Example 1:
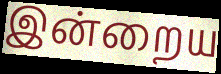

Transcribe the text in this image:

இன்றைய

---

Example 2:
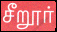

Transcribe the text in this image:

சீறூர்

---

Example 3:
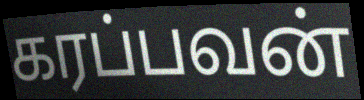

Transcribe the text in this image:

கரப்பவன்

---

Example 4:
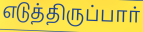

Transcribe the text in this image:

எடுத்திருப்பார்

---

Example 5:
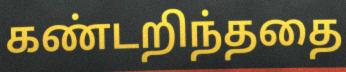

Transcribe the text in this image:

கண்டறிந்ததை